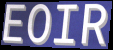
EOIR